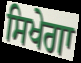
ਸਿਖੇਗਾ